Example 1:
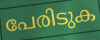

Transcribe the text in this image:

പേരിടുക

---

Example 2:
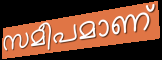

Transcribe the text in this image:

സമീപമാണ്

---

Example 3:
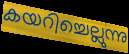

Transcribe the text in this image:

കയറിച്ചെല്ലുന്നു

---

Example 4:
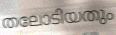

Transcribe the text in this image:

തലോടിയതും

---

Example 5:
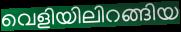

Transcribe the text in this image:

വെളിയിലിറങ്ങിയ